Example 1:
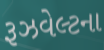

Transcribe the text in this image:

રૂઝવેલ્ટના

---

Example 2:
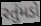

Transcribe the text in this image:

રતુંમડો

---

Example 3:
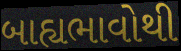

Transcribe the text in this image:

બાહ્યભાવોથી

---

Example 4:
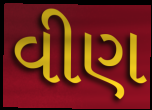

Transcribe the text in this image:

વીણ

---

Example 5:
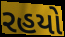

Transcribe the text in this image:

રહયો